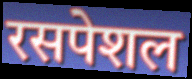
रसपेशल